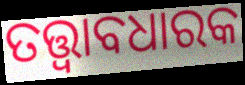
ତତ୍ତ୍ୱାବଧାରକ